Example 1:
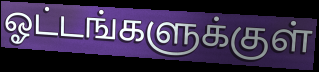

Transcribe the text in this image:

ஓட்டங்களுக்குள்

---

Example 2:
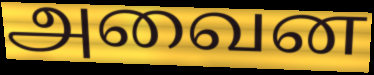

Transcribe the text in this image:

அவைன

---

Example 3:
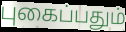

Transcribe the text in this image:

புகைப்பதும்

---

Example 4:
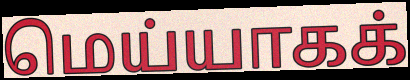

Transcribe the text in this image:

மெய்யாகக்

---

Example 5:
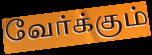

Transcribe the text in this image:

வேர்க்கும்